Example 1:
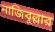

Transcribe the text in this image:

নাজিবুল্লার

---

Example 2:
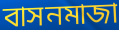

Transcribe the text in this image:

বাসনমাজা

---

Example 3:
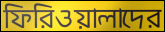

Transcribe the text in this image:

ফিরিওয়ালাদের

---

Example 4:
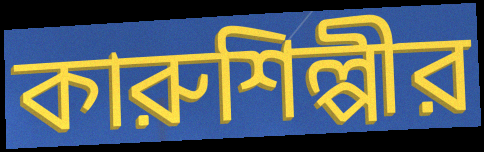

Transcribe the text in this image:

কারুশিল্পীর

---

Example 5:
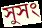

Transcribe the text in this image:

সুসং